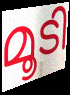
മൂടി